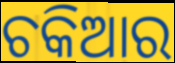
ଚକିଆର